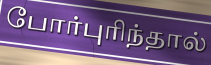
போர்புரிந்தால்